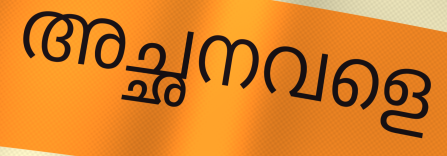
അച്ഛനവളെ